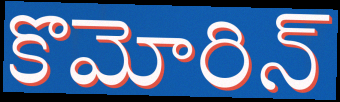
కొమోరిన్